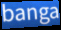
banga